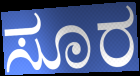
ಸೂರ